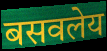
बसवलेय